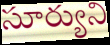
సూర్యుని